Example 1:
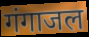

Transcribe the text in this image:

गंगाजल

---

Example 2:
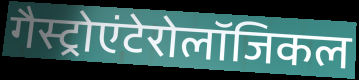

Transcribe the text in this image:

गैस्ट्रोएंटेरोलॉजिकल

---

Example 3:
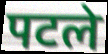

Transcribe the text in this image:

पटले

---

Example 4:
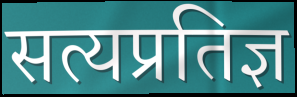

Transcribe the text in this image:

सत्यप्रतिज्ञ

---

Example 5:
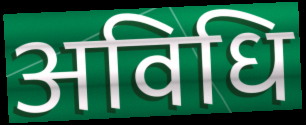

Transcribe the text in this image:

अविधि